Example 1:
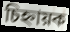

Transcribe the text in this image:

চিহ্নায়ক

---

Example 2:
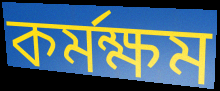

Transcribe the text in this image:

কৰ্মক্ষম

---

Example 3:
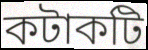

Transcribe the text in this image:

কটাকটি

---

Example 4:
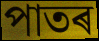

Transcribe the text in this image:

পাতৰ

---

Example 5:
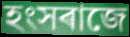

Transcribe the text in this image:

হংসৰাজে